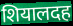
शियालदह